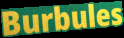
Burbules